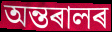
অন্তৰালৰ